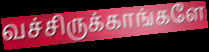
வச்சிருக்காங்களே